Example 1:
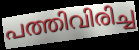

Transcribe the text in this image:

പത്തിവിരിച്ച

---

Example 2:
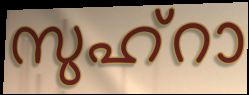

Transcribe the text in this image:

സുഹ്റാ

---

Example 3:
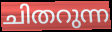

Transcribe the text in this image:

ചിതറുന്ന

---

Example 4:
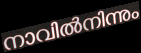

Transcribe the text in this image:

നാവിൽനിന്നും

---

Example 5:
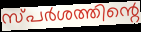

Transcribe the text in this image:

സ്പർശത്തിന്റെ